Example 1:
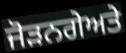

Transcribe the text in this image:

ਜੋੜਨਗੇਅਤੇ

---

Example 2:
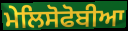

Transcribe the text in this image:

ਮੇਲਿਸੋਫੋਬੀਆ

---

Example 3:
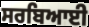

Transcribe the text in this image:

ਸਰਬਿਆਈ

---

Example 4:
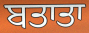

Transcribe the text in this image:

ਬਤਾਤਾ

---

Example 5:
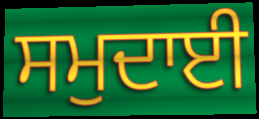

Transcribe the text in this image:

ਸਮੁਦਾਈ